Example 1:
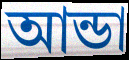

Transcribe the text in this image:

আন্ডা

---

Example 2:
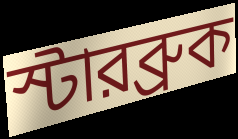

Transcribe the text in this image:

স্টারব্রুক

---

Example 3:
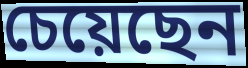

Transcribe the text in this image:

চেয়েছেন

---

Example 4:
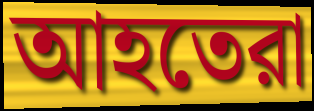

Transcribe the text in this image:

আহতেরা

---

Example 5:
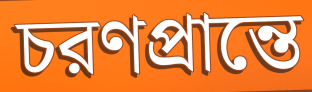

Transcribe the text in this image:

চরণপ্রান্তে